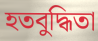
হতবুদ্ধিতা